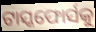
ଟାସ୍କଫୋର୍ସକୁ